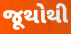
જૂથોથી